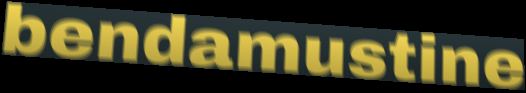
bendamustine